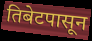
तिबेटपासून